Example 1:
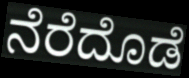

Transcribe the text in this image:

ನೆರೆದೊಡೆ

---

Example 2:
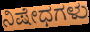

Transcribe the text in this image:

ನಿಷೇಧಗಳು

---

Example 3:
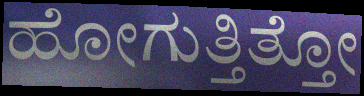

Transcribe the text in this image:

ಹೋಗುತ್ತಿತ್ತೋ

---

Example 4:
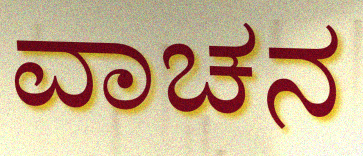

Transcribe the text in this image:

ವಾಚನ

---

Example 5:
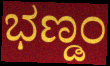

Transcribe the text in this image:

ಭಣ್ಡಂ